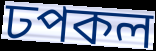
ঢপকল